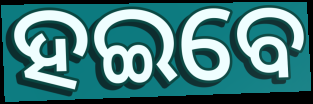
ହଇବେ